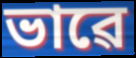
ভাৱে